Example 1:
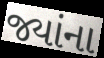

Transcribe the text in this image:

જ્યાંના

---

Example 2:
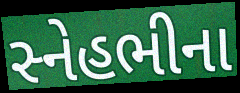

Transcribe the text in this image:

સ્નેહભીના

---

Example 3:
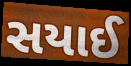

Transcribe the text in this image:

સયાઈ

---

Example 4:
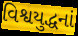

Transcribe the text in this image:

વિશ્વયુદ્ધનાં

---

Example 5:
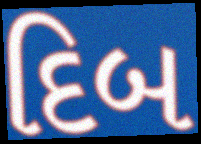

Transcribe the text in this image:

દિબ